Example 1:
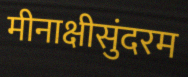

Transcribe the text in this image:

मीनाक्षीसुंदरम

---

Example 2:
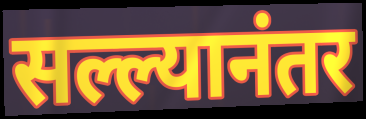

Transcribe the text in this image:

सल्ल्यानंतर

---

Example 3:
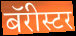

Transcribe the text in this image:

बॅरीस्टर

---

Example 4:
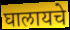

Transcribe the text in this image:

घालायचे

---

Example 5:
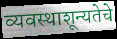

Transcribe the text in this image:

व्यवस्थाशून्यतेचे